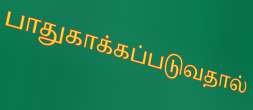
பாதுகாக்கப்படுவதால்